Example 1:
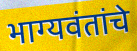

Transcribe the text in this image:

भाग्यवंतांचे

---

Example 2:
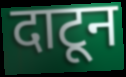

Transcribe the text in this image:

दाटून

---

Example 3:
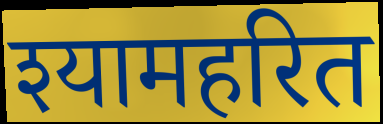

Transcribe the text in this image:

श्यामहरित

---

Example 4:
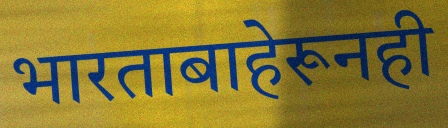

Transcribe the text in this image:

भारताबाहेरूनही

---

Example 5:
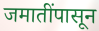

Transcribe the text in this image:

जमातींपासून